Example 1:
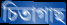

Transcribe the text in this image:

চিতাগাছ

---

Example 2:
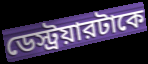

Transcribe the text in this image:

ডেস্ট্রয়ারটাকে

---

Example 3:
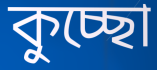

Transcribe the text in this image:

কুচ্ছো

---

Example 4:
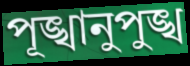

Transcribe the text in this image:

পূঙ্খানুপুঙ্খ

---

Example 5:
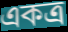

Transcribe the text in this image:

একত্র